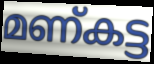
മണ്കട്ട